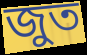
জুত